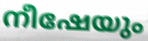
നീഷേയും